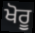
ਖੋਰੂ